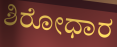
ಶಿರೋಧಾರ